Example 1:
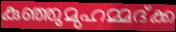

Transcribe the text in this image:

കുഞ്ഞുമുഹമ്മദ്ക്ക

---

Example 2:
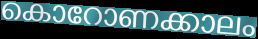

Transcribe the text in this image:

കൊറോണക്കാലം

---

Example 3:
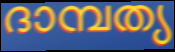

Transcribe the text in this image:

ദാമ്പത്യ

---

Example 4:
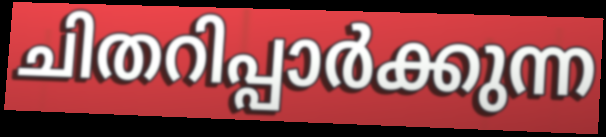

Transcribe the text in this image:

ചിതറിപ്പാർക്കുന്ന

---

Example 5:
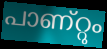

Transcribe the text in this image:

പാണ്റ്റും